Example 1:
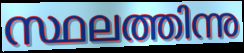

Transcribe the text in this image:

സ്ഥലത്തിന്നു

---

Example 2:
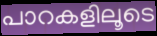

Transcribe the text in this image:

പാറകളിലൂടെ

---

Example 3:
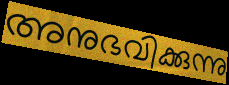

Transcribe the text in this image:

അനുഭവിക്കുന്നു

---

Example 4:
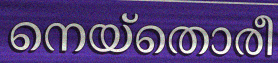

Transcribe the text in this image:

നെയ്തൊരീ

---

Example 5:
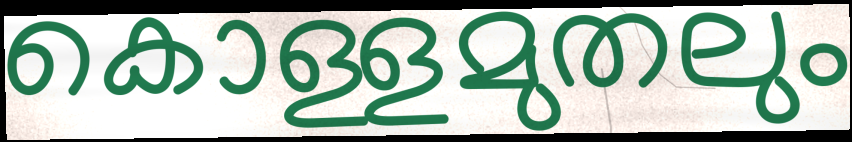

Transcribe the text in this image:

കൊള്ളമുതലും